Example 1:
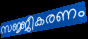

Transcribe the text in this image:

സജ്ജീകരണം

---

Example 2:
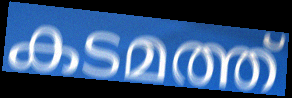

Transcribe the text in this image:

കടമത്ത്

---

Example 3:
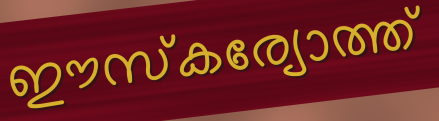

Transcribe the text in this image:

ഈസ്കര്യോത്ത്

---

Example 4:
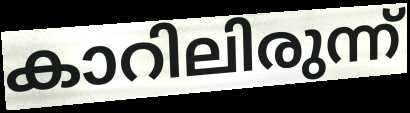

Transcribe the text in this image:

കാറിലിരുന്ന്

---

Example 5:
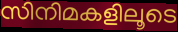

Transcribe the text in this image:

സിനിമകളിലൂടെ